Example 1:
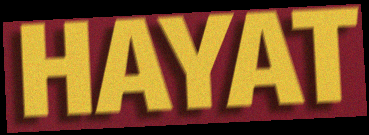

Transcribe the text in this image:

HAYAT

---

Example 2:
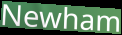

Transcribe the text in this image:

Newham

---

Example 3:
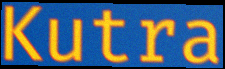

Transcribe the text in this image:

Kutra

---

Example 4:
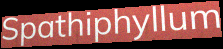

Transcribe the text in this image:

Spathiphyllum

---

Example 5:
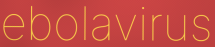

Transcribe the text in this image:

ebolavirus